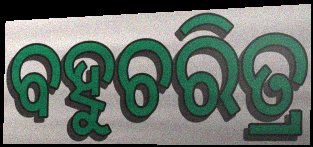
ବହୁଚରିତ୍ର